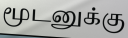
மூடனுக்கு